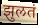
झुलतं